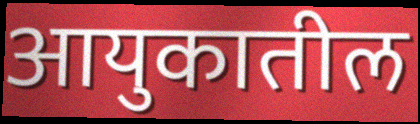
आयुकातील